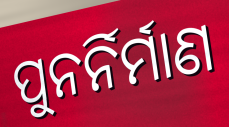
ପୁନର୍ନିର୍ମାଣ